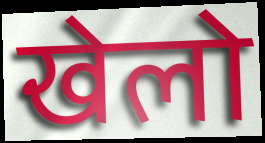
खेलो